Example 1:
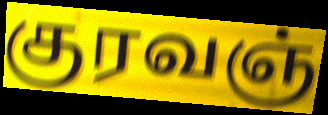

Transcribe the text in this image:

குரவஞ்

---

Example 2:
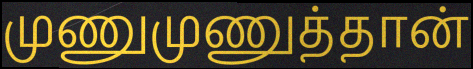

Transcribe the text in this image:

முணுமுணுத்தான்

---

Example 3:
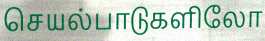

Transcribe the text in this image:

செயல்பாடுகளிலோ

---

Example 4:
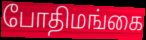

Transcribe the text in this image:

போதிமங்கை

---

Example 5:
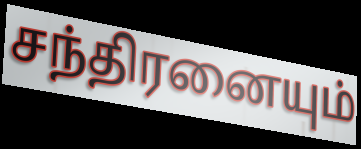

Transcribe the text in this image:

சந்திரனையும்